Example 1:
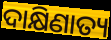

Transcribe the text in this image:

ଦାକ୍ଷିଣାତ୍ୟ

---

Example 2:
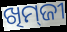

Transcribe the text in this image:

ଖିମ୍‌ଜୀ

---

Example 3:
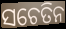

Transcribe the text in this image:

ସଚେତିନ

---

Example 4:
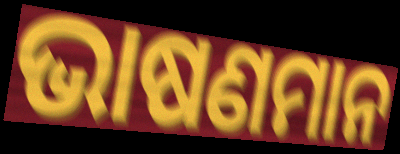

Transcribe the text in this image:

ଭାଷଣମାନ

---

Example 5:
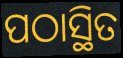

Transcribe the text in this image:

ପଠାସ୍ଥିତ